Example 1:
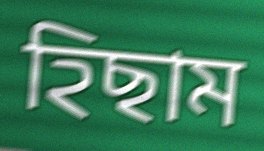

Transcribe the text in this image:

হিছাম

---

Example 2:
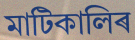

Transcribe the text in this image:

মাটিকালিৰ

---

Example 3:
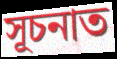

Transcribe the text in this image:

সূচনাত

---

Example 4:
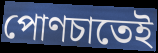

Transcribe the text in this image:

পোণচাতেই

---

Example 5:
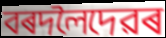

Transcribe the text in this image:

বৰদলৈদেৱৰ